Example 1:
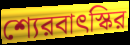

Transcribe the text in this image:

শ্যেরবাৎস্কির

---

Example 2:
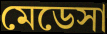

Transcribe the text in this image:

মেডেসা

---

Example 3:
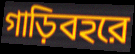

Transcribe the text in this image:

গাড়িবহরে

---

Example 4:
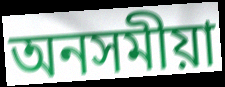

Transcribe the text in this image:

অনসমীয়া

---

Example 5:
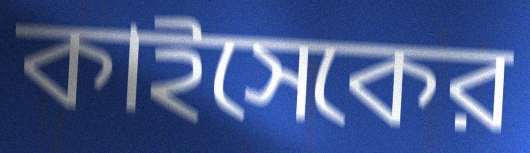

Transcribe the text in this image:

কাইসেকের